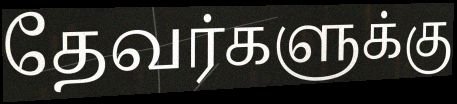
தேவர்களுக்கு